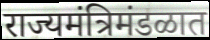
राज्यमंत्रिमंडळात